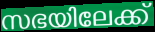
സഭയിലേക്ക്